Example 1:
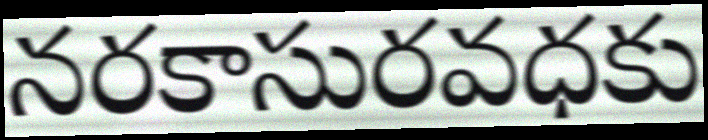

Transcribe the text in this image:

నరకాసురవధకు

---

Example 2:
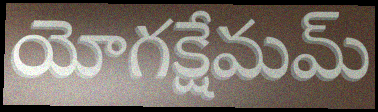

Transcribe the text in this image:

యోగక్షేమమ్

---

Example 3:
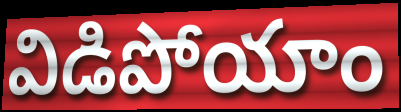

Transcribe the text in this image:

విడిపోయాం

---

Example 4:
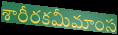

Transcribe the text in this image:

శారీరకమీమాంస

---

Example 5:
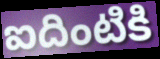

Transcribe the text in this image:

ఐదింటికి